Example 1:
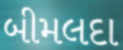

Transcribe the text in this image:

બીમલદા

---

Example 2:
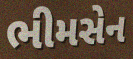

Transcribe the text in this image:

ભીમસેન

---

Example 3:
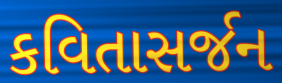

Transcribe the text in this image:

કવિતાસર્જન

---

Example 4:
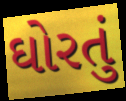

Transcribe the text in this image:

ઘોરતું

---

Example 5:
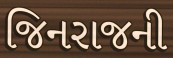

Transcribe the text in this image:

જિનરાજની